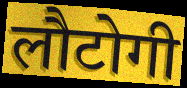
लौटोगी